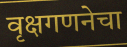
वृक्षगणनेचा